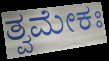
ತ್ವಮೇಕಃ